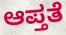
ಆಪ್ತತೆ